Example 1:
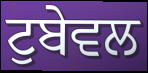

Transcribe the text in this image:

ਟੁਬੇਵਲ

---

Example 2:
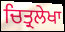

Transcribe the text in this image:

ਚਿਤ੍ਰਲੇਖਾ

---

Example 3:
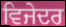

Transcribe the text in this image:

ਵਿਜੇਦਰ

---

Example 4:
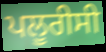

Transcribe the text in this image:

ਪਲੂਰੀਸੀ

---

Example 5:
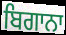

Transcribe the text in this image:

ਬਿਗਾਨਾ